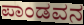
ಪಾಂಡವನ